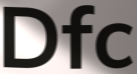
Dfc